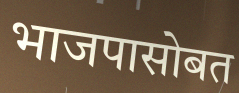
भाजपासोबत